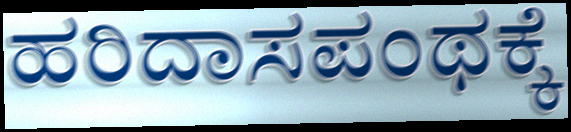
ಹರಿದಾಸಪಂಥಕ್ಕೆ